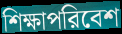
শিক্ষাপরিবেশ